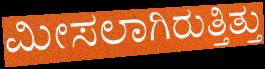
ಮೀಸಲಾಗಿರುತ್ತಿತ್ತು